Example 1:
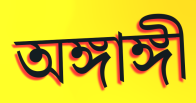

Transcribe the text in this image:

অঙ্গাঙ্গী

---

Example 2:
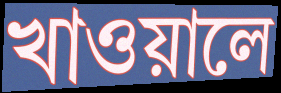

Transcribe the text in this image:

খাওয়ালে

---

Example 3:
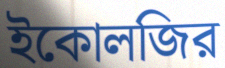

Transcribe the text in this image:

ইকোলজির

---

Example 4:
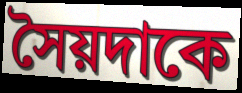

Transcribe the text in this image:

সৈয়দাকে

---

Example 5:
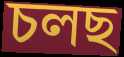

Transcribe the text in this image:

চলছ